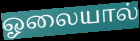
ஓலையால்